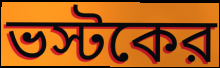
ভস্টকের